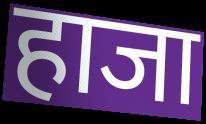
हाजा